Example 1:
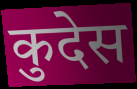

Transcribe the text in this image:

कुदेस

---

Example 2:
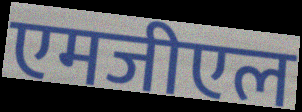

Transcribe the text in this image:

एमजीएल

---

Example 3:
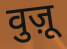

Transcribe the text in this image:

वुज़ू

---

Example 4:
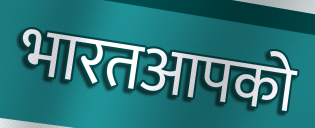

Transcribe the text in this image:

भारतआपको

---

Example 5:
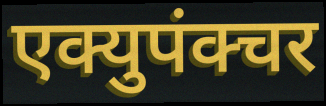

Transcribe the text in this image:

एक्युपंक्चर